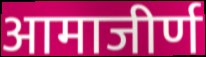
आमाजीर्ण